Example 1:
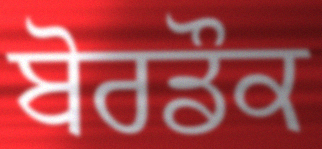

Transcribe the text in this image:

ਬੋਰਡੌਕ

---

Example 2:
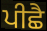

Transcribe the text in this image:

ਪੀਛੈ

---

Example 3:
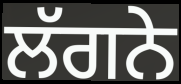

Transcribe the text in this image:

ਲੱਗਨੇ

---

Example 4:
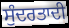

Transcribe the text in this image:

ਸੁੰਦਰਤਾਦੀ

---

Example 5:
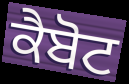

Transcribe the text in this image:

ਕੈਬੋਟ